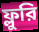
ফ্লুরি